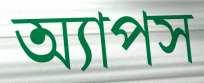
অ্যাপস